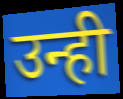
उन्ही